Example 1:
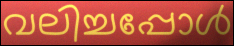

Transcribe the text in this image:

വലിച്ചപ്പോൾ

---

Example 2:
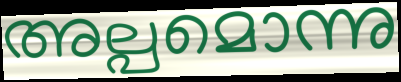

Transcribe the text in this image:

അല്പമൊന്നു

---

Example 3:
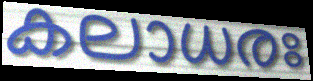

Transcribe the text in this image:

കലാധരഃ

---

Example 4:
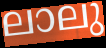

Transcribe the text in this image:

ലാലു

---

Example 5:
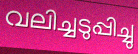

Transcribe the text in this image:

വലിച്ചടുപ്പിച്ചു